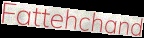
Fattehchand